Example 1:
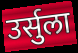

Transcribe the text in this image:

उर्सुला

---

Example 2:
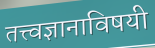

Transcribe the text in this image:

तत्त्वज्ञानाविषयी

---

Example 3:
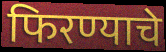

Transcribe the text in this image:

फिरण्याचे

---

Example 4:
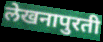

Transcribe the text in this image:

लेखनापुरती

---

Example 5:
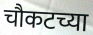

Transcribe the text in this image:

चौकटच्या